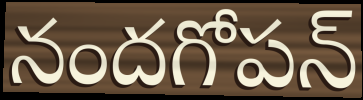
నందగోపన్